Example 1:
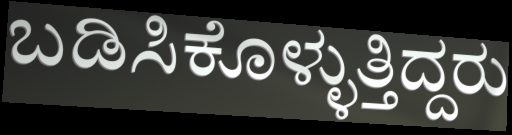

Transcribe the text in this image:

ಬಡಿಸಿಕೊಳ್ಳುತ್ತಿದ್ದರು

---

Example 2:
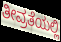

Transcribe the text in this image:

ತೀವ್ರತೆಯಲ್ಲಿ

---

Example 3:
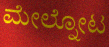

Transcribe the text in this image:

ಮೇಲ್ನೋಟ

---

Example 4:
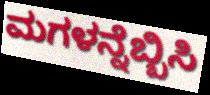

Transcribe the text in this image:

ಮಗಳನ್ನೆಬ್ಬಿಸಿ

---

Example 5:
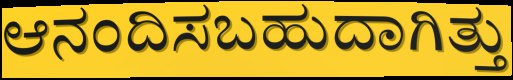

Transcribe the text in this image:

ಆನಂದಿಸಬಹುದಾಗಿತ್ತು